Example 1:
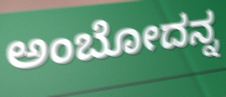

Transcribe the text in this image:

ಅಂಬೋದನ್ನ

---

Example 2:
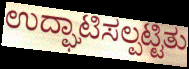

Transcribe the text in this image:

ಉದ್ಘಾಟಿಸಲ್ಪಟ್ಟಿತು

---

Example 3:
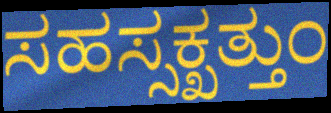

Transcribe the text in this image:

ಸಹಸ್ಸಕ್ಖತ್ತುಂ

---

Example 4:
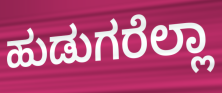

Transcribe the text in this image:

ಹುಡುಗರೆಲ್ಲಾ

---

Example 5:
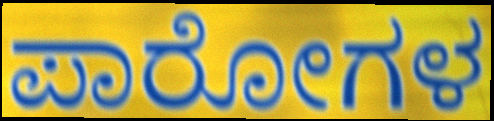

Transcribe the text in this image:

ಪಾರೋಗಳ